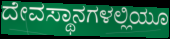
ದೇವಸ್ಥಾನಗಳಲ್ಲಿಯೂ